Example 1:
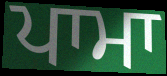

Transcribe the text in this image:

ਪਾਮਾ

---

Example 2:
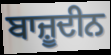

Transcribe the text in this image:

ਬਾਜ਼ੂਦੀਨ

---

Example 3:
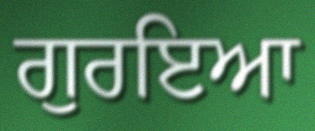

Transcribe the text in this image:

ਗੁਰਇਆ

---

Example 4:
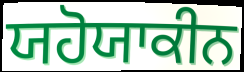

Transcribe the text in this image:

ਯਹੋਯਾਕੀਨ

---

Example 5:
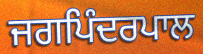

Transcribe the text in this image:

ਜਗਪਿੰਦਰਪਾਲ